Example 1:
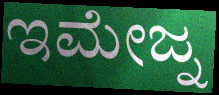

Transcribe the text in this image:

ಇಮೇಜ್ನ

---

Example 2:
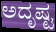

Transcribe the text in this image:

ಅದೃಷ್ಟ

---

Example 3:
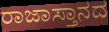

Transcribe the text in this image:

ರಾಜಾಸ್ತಾನದ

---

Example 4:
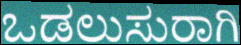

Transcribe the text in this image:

ಒಡಲುಸುರಾಗಿ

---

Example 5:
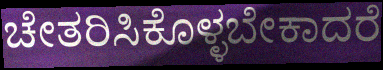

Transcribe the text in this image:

ಚೇತರಿಸಿಕೊಳ್ಳಬೇಕಾದರೆ